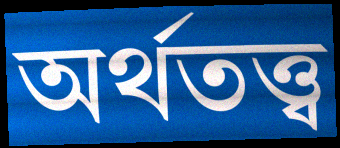
অৰ্থতত্ত্ব